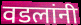
वडलांनी